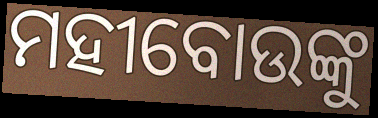
ମହୀବୋଉଙ୍କୁ